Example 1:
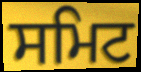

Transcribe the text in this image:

ਸਮਿਟ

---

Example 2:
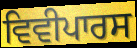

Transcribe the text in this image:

ਵਿਵੀਪਾਰਸ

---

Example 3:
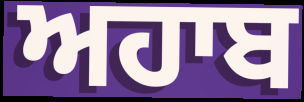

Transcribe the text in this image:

ਅਹਾਬ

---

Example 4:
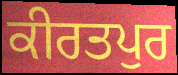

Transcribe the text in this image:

ਕੀਰਤਪੁਰ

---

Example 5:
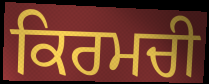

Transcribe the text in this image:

ਕਿਰਮਚੀ